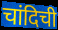
चांदिची